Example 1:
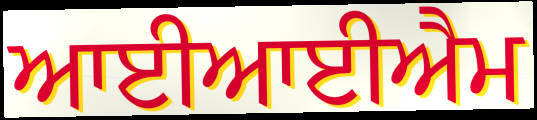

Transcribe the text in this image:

ਆਈਆਈਐਮ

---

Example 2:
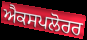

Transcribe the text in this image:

ਐਕਸਪਲੋਰਰ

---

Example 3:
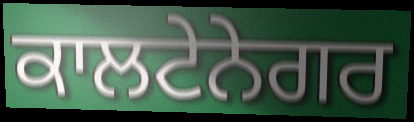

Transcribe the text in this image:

ਕਾਲਟੇਨੇਗਰ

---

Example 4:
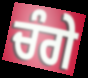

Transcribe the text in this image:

ਚੰਗੇ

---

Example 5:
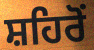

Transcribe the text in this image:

ਸ਼ਹਿਰੋਂ